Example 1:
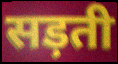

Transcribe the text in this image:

सड़ती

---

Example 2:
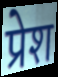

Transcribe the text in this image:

प्रेश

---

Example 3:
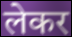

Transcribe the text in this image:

लेकर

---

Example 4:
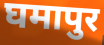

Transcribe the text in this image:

घमापुर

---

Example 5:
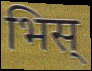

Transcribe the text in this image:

भिस्